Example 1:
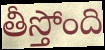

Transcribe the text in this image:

తీస్తోంది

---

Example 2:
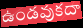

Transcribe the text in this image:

ఉండవుకదా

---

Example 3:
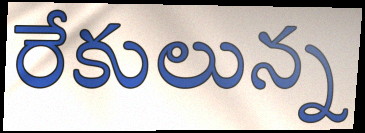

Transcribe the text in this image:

రేకులున్న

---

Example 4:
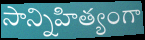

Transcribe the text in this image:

సాన్నిహిత్యంగా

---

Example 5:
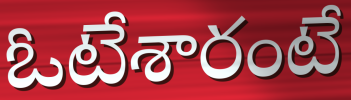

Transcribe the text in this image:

ఓటేశారంటే